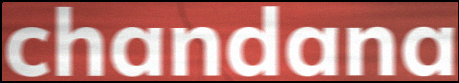
chandana